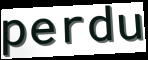
perdu